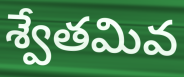
శ్వేతమివ